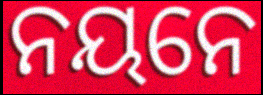
ନୟନେ